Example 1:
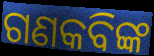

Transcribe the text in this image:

ଗଣକବିଙ୍କ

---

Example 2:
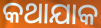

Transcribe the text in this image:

କଥାଯାକ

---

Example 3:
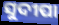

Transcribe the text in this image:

ସୁଦୀପା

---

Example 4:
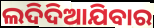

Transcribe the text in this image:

ଲଦିଦିଆଯିବାର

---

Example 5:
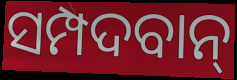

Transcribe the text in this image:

ସମ୍ପଦବାନ୍